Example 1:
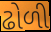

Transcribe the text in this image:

ઢોળી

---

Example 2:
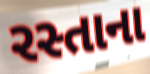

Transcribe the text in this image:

રસ્તાના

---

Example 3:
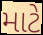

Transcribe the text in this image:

માટે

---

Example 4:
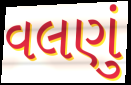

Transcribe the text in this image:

વલણું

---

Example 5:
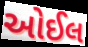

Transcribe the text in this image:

ઓઈલ